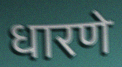
धारणे